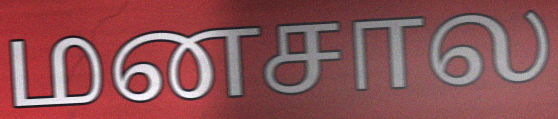
மனசால